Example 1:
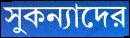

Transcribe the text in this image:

সুকন্যাদের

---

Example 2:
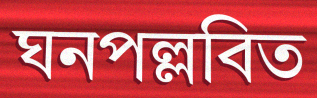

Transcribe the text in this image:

ঘনপল্লবিত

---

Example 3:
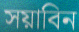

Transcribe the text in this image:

সয়াবিন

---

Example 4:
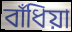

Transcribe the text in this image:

বাঁধিয়া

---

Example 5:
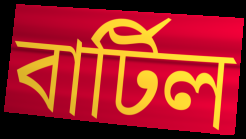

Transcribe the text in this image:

বার্টিল